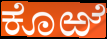
ಕೊಱೆ